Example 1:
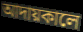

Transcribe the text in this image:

আদায়কালে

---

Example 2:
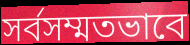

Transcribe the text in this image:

সর্বসম্মতভাবে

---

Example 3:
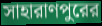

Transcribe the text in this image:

সাহারাণপুরের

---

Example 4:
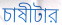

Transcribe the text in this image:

চাষীটার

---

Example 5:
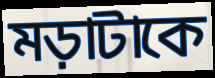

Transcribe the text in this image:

মড়াটাকে